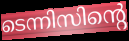
ടെന്നിസിന്റെ